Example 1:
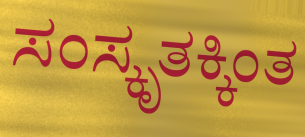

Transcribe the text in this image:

ಸಂಸ್ಕೃತಕ್ಕಿಂತ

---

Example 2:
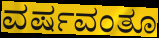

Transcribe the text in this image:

ವರ್ಷವಂತೂ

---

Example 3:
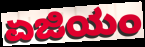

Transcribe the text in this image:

ಏಜಿಯಂ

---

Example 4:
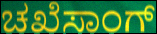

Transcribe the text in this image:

ಚಖೆಸಾಂಗ್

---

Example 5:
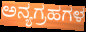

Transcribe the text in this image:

ಅನ್ಯಗ್ರಹಗಳ